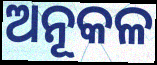
ଅନୂକଳ